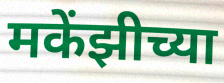
मकेंझीच्या